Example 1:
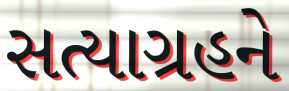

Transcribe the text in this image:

સત્યાગ્રહને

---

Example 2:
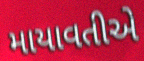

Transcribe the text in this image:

માયાવતીએ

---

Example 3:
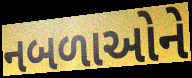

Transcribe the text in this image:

નબળાઓને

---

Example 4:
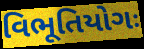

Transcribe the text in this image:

વિભૂતિયોગઃ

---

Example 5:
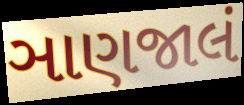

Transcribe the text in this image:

ઞાણજાલં